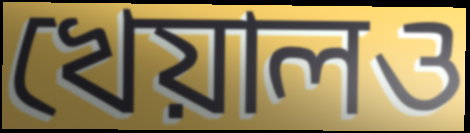
খেয়ালও